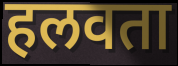
हलवता